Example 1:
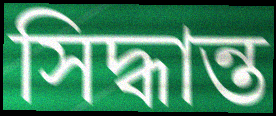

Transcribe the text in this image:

সিদ্ধান্ত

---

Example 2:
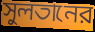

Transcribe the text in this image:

সুলতানের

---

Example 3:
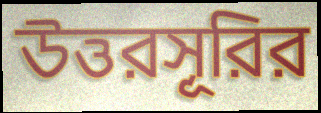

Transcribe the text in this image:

উত্তরসূরির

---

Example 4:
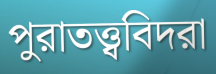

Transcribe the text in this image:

পুরাতত্ত্ববিদরা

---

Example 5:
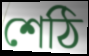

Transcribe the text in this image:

শেঠি